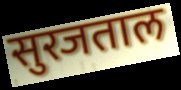
सुरजताल